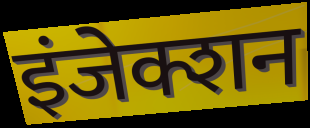
इंजेक्शन